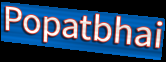
Popatbhai